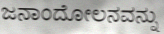
ಜನಾಂದೋಲನವನ್ನು